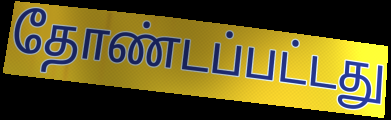
தோண்டப்பட்டது